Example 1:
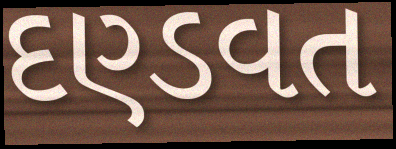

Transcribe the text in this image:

દણ્ડવત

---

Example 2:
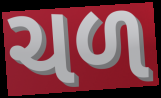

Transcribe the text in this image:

ચળ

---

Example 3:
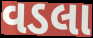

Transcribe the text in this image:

વડલા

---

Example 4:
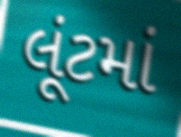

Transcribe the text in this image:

લૂંટમાં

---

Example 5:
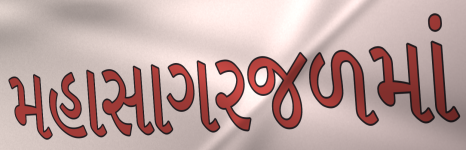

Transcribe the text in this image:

મહાસાગરજળમાં